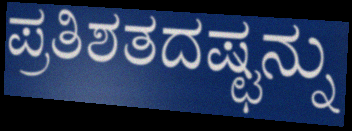
ಪ್ರತಿಶತದಷ್ಟನ್ನು